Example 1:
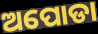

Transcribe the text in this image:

ଅପୋଡା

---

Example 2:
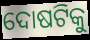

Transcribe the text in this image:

ଦୋଷଟିକୁ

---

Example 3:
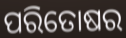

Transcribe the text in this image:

ପରିତୋଷର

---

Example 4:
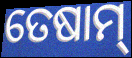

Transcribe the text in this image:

ତେଷାମ୍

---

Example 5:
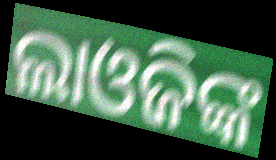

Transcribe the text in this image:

ଲାଓଜିଙ୍କ